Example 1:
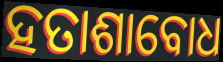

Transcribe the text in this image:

ହତାଶାବୋଧ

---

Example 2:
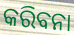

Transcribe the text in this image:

କରିବନା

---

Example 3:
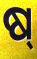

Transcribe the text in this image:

ଷ୍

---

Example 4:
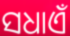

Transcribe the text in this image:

ସଧାଏଁ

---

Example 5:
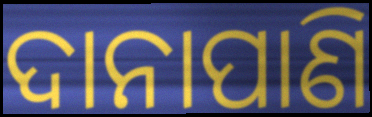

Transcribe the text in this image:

ଦାନାପାଣି